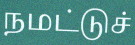
நமட்டுச்